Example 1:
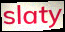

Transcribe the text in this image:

slaty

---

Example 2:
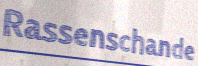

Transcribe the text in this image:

Rassenschande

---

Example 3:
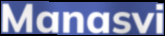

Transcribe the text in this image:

Manasvi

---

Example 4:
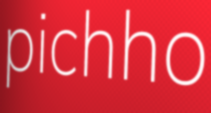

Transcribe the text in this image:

pichho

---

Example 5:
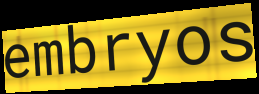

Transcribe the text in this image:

embryos